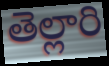
తెల్లారి